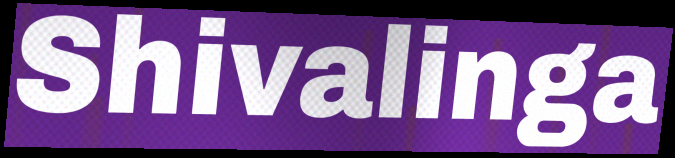
Shivalinga